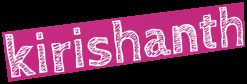
kirishanth